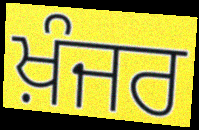
ਖ਼ੰਜਰ